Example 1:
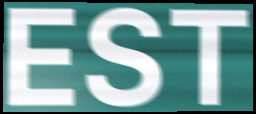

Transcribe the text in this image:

EST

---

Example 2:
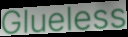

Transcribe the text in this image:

Glueless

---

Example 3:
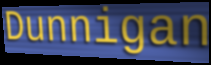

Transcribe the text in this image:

Dunnigan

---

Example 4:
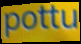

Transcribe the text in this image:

pottu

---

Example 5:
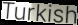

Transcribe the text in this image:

Turkish